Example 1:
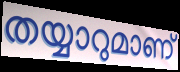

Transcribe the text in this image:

തയ്യാറുമാണ്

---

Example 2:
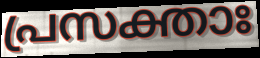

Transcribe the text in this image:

പ്രസക്താഃ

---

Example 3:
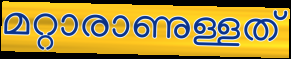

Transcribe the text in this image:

മറ്റാരാണുള്ളത്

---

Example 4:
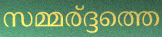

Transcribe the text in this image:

സമ്മര്ദ്ദത്തെ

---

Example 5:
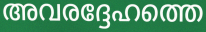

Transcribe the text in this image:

അവരദ്ദേഹത്തെ